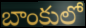
బాంకులో